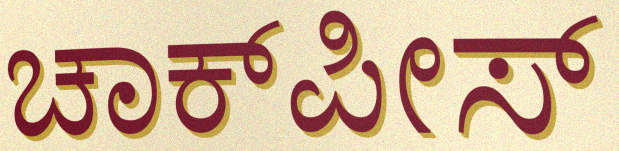
ಚಾಕ್‍ಪೀಸ್